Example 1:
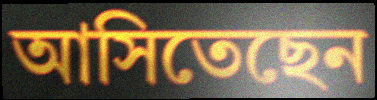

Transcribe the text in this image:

আসিতেছেন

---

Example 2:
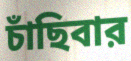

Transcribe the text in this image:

চাঁছিবার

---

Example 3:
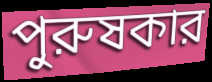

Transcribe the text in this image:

পুরুষকার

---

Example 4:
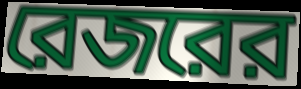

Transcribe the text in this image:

রেজরের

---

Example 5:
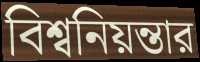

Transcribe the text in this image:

বিশ্বনিয়ন্তার